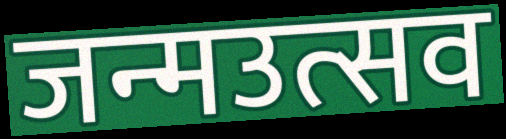
जन्मउत्सव